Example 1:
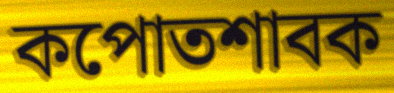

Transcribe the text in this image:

কপোতশাবক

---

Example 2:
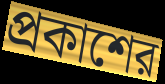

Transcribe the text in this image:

প্রকাশের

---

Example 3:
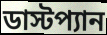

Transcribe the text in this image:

ডাস্টপ্যান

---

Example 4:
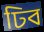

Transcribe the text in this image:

ঢিব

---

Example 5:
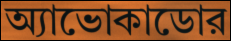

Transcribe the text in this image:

অ্যাভোকাডোর